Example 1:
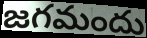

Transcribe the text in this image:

జగమందు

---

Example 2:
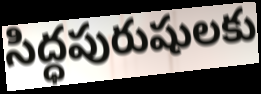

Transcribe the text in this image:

సిద్ధపురుషులకు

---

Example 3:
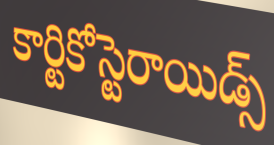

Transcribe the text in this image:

కార్టికోస్టెరాయిడ్స్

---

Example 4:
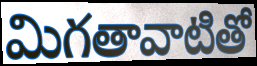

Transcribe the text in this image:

మిగతావాటితో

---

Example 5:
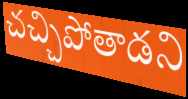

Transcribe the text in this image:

చచ్చిపోతాడని